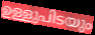
ഉള്ളുപിടയും